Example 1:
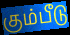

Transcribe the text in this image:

கும்பீடு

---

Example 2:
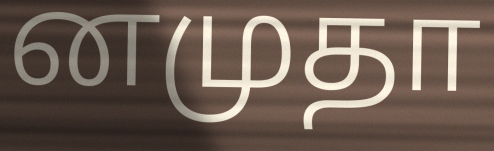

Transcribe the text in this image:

னமுதா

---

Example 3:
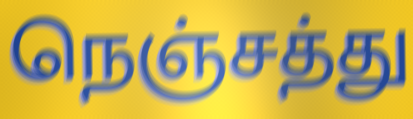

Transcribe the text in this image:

நெஞ்சத்து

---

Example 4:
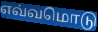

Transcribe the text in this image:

எவ்வமொடு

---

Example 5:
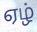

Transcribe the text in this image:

ஏழ்